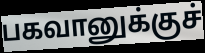
பகவானுக்குச்